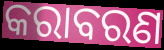
କରାବରଣ